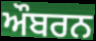
ਔਬਰਨ